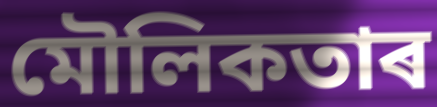
মৌলিকতাৰ